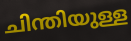
ചിന്തിയുള്ള